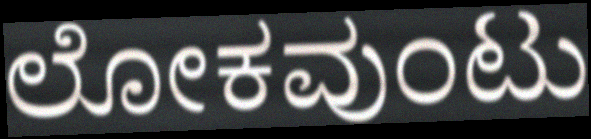
ಲೋಕವುಂಟು